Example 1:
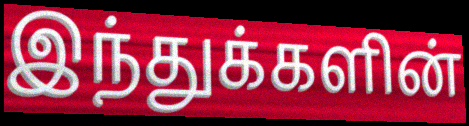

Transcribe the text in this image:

இந்துக்களின்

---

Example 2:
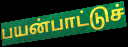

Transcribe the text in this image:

பயன்பாட்டுச்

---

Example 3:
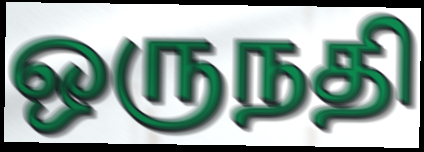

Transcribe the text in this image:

ஒருநதி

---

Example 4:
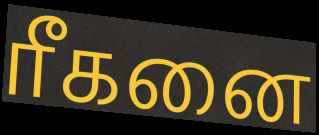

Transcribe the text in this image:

ரீகனை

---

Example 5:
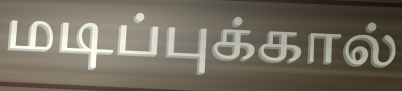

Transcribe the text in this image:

மடிப்புக்கால்